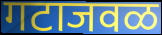
गटाजवळ